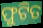
ଫୁଟିତ